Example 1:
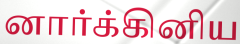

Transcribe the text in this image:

னார்க்கினிய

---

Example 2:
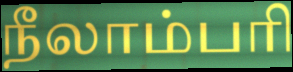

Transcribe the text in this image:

நீலாம்பரி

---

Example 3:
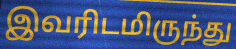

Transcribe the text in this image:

இவரிடமிருந்து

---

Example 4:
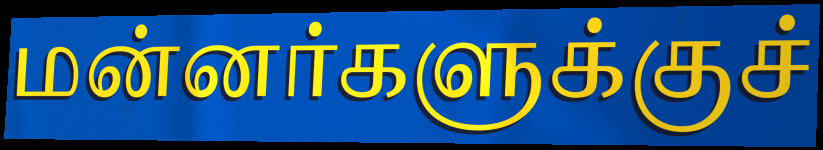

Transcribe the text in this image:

மன்னர்களுக்குச்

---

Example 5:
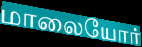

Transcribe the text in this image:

மாலையோர்